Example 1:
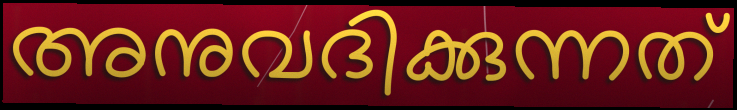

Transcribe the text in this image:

അനുവദിക്കുന്നത്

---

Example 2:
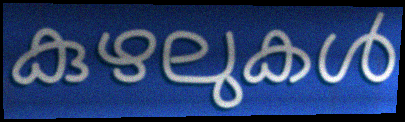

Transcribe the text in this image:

കുഴലുകൾ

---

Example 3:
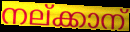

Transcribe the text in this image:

നല്ക്കാന്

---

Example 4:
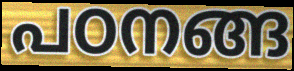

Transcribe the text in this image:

പഠനങ്ങ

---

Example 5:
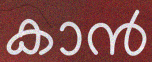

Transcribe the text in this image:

കാൻ